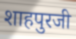
शाहपुरजी